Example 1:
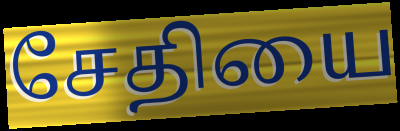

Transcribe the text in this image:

சேதியை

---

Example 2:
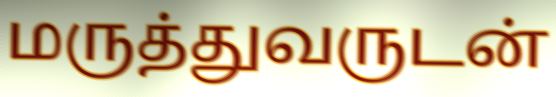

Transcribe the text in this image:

மருத்துவருடன்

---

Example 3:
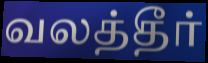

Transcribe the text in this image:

வலத்தீர்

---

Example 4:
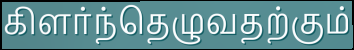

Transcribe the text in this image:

கிளர்ந்தெழுவதற்கும்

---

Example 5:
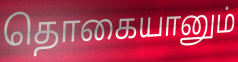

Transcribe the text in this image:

தொகையானும்